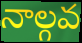
నాల్గవ